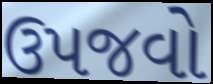
ઉપજવો